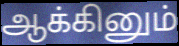
ஆக்கினும்